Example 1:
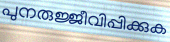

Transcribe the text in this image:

പുനരുജ്ജീവിപ്പിക്കുക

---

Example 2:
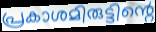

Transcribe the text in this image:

പ്രകാശമിരുട്ടിന്റെ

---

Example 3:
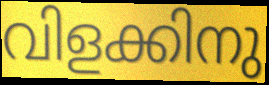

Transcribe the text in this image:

വിളക്കിനു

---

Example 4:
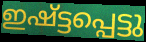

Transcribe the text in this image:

ഇഷ്ട്ടപ്പെട്ടു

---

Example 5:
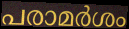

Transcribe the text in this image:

പരാമർശം